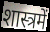
शास्त्रमें